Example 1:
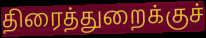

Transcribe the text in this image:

திரைத்துறைக்குச்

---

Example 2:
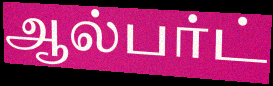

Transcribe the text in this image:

ஆல்பர்ட்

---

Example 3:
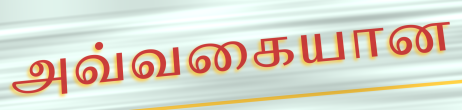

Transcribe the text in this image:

அவ்வகையான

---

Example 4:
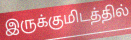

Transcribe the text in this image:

இருக்குமிடத்தில்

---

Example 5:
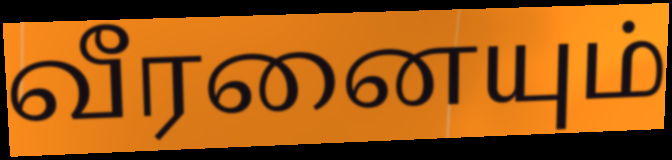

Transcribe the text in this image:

வீரனையும்